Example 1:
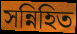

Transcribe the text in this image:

সন্নিহিত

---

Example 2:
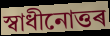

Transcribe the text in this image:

স্বাধীনোত্তৰ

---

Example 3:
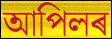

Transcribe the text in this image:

আপিলৰ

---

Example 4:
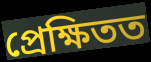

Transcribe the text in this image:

প্ৰেক্ষিতত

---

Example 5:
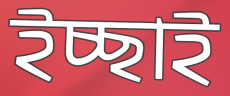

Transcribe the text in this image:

ইচ্ছাই